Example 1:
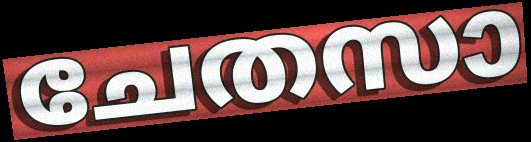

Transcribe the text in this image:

ചേതസാ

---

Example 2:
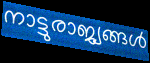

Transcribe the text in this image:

നാട്ടുരാജ്യങ്ങൾ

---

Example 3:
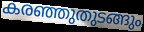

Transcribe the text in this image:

കരഞ്ഞുതുടങ്ങും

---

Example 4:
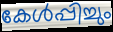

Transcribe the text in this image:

കേൾപ്പിച്ചും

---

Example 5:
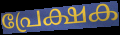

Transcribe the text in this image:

പ്രേക്ഷക